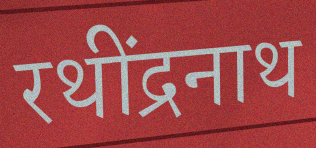
रथींद्रनाथ